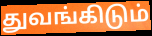
துவங்கிடும்